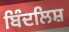
ਬਿੰਦਲਿਸ਼